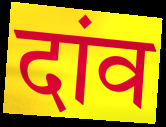
दांव